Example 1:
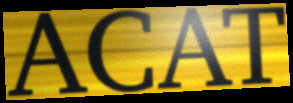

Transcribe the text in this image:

ACAT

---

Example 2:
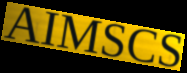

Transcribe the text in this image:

AIMSCS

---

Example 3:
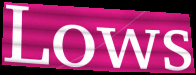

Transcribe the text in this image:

Lows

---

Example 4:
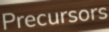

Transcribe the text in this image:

Precursors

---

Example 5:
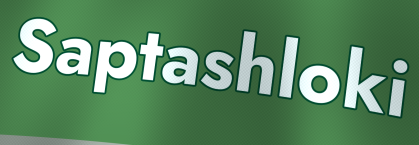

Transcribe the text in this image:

Saptashloki